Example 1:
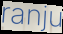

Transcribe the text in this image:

ranju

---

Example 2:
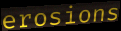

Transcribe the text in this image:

erosions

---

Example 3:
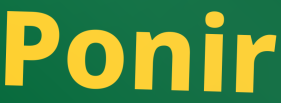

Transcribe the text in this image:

Ponir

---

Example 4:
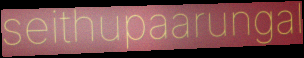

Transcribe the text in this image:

seithupaarungal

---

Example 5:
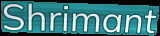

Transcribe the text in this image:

Shrimant